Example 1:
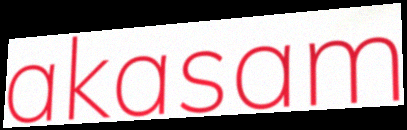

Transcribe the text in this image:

akasam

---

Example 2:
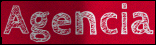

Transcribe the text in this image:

Agencia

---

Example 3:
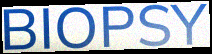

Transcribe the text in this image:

BIOPSY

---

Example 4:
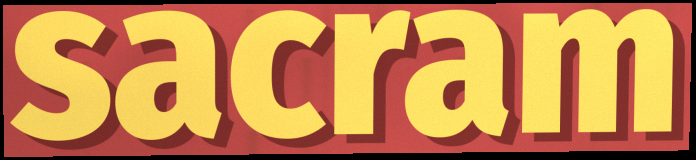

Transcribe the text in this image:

sacram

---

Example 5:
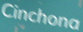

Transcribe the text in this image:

Cinchona